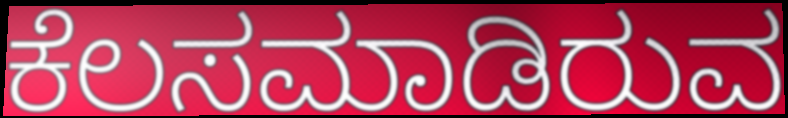
ಕೆಲಸಮಾಡಿರುವ